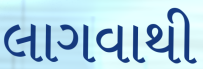
લાગવાથી